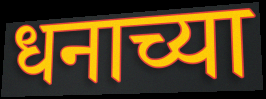
धनाच्या